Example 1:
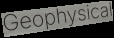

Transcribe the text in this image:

Geophysical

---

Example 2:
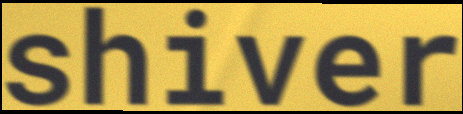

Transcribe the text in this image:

shiver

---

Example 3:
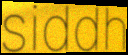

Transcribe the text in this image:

siddh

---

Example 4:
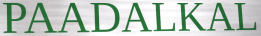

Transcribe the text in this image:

PAADALKAL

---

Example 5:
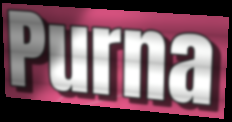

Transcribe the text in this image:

Purna